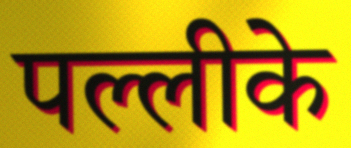
पल्लीके